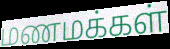
மணமக்கள்